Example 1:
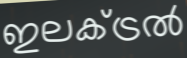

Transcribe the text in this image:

ഇലക്ട്രൽ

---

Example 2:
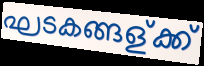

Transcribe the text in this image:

ഘടകങ്ങള്ക്ക്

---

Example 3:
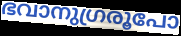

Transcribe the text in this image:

ഭവാനുഗ്രരൂപോ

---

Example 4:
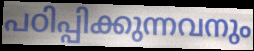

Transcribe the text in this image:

പഠിപ്പിക്കുന്നവനും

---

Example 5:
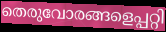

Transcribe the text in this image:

തെരുവോരങ്ങളെപ്പറ്റി